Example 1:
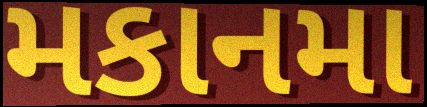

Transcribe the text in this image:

મકાનમા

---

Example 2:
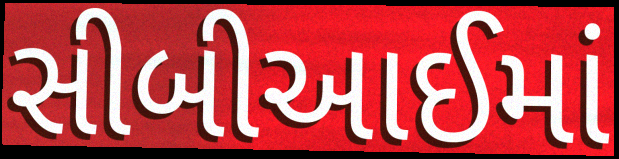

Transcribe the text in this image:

સીબીઆઈમાં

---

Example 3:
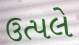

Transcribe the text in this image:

ઉત્પલે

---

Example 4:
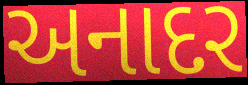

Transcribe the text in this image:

અનાદર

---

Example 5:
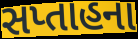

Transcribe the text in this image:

સપ્તાહના